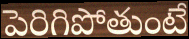
పెరిగిపోతుంటే